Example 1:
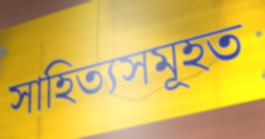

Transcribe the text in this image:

সাহিত্যসমূহত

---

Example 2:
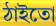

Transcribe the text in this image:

ঠাইতো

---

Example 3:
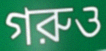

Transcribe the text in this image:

গৰুও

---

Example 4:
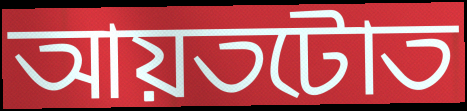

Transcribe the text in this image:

আয়তটোত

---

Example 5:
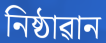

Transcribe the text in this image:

নিষ্ঠাৱান